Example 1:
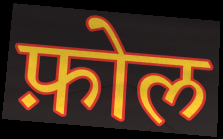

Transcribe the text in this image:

फ़ोल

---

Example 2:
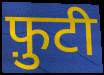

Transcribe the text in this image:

फ़ुटी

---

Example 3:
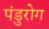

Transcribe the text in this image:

पंडुरोग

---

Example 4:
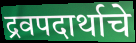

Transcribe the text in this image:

द्रवपदार्थाचे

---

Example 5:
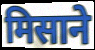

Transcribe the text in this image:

मिसाने